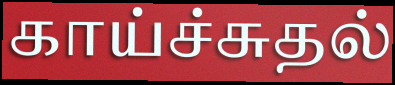
காய்ச்சுதல்